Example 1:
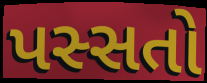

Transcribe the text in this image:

પસ્સતો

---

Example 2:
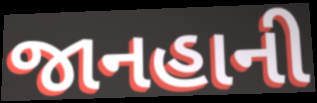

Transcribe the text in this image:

જાનહાની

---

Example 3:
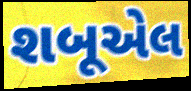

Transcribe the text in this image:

શબૂએલ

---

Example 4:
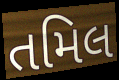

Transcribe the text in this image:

તમિલ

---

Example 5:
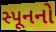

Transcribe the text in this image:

સ્પૂનનો